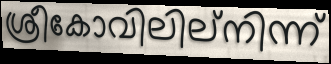
ശ്രീകോവിലില്നിന്ന്